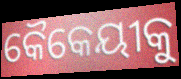
କୈକେୟୀକୁ